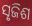
ସୃଜିଶ